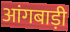
आंगबाड़ी